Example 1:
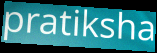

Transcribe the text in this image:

pratiksha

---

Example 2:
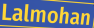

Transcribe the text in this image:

Lalmohan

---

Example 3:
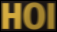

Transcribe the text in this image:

HOI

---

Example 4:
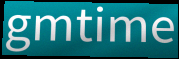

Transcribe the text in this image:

gmtime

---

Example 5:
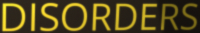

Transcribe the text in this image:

DISORDERS